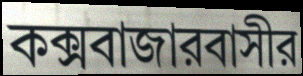
কক্সবাজারবাসীর